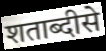
शताब्दीसे